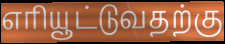
எரியூட்டுவதற்கு